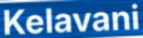
Kelavani